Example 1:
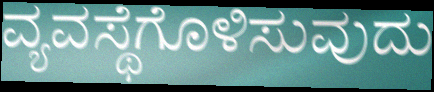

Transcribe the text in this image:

ವ್ಯವಸ್ಥೆಗೊಳಿಸುವುದು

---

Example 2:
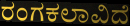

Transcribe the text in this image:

ರಂಗಕಲಾವಿದೆ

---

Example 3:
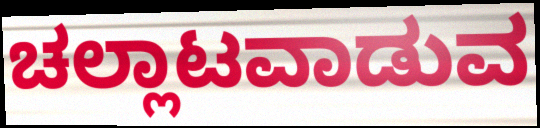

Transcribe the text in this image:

ಚಲ್ಲಾಟವಾಡುವ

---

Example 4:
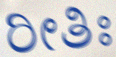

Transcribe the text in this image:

ರೀತಿಃ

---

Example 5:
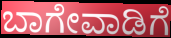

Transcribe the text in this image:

ಬಾಗೇವಾಡಿಗೆ